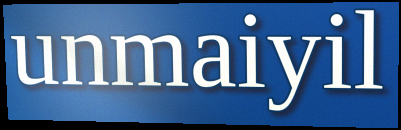
unmaiyil